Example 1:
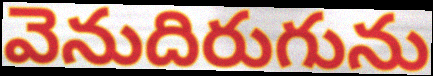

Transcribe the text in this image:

వెనుదిరుగును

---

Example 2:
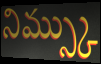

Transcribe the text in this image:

నిమ్స్కు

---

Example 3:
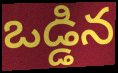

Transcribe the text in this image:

ఒడ్డిన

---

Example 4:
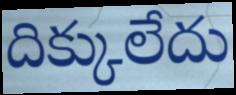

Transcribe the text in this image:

దిక్కులేదు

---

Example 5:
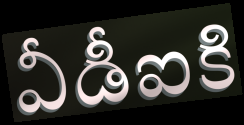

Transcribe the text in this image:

వీడీఐకి